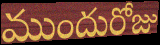
ముందురోజు